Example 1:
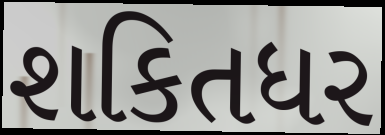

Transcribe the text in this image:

શકિતધર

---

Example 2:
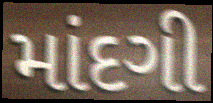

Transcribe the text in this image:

માંદગી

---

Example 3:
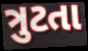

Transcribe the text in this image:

ત્રુટતા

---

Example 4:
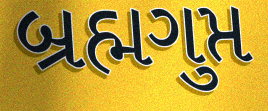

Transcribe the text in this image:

બ્રહ્મગુપ્ત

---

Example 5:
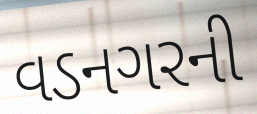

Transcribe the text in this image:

વડનગરની